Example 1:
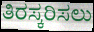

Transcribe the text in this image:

ತಿರಸ್ಕರಿಸಲು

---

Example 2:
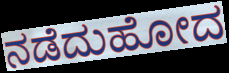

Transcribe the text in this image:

ನಡೆದುಹೋದ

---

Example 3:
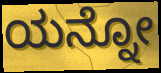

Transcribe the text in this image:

ಯನ್ನೋ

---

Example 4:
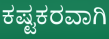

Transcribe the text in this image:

ಕಷ್ಟಕರವಾಗಿ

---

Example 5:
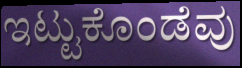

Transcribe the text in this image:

ಇಟ್ಟುಕೊಂಡೆವು